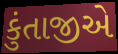
કુંતાજીએ